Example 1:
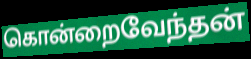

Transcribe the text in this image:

கொன்றைவேந்தன்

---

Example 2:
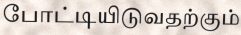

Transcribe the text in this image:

போட்டியிடுவதற்கும்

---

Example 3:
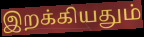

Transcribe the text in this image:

இறக்கியதும்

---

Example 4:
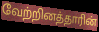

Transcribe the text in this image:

வேற்றினத்தாரின்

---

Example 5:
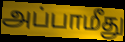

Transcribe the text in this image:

அப்பாமீது